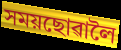
সময়ছোৱালৈ